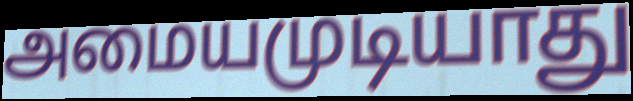
அமையமுடியாது